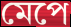
মেপে